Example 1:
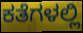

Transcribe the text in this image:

ಕತೆಗಳಲ್ಲಿ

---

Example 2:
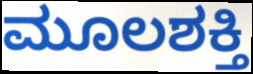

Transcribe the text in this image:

ಮೂಲಶಕ್ತಿ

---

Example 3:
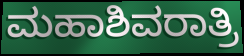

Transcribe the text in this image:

ಮಹಾಶಿವರಾತ್ರಿ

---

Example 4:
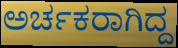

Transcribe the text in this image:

ಅರ್ಚಕರಾಗಿದ್ದ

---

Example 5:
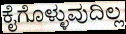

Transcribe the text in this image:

ಕೈಗೊಳ್ಳುವುದಿಲ್ಲ